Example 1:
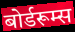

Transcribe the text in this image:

बोर्डरूम्स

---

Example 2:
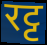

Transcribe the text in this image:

रट्ट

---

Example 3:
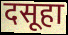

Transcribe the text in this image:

दसूहा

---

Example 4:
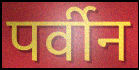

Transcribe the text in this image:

पर्वीन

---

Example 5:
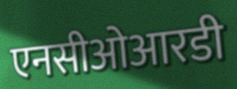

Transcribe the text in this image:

एनसीओआरडी